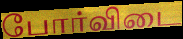
போர்விடை